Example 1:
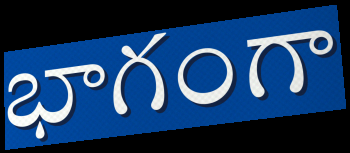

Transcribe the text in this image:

భాగంగా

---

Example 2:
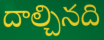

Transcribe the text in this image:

దాల్చినది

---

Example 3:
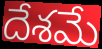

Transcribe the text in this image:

దేశమే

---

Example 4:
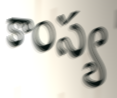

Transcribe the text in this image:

కాంస్య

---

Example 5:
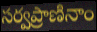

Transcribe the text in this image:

సర్వప్రాణినాం